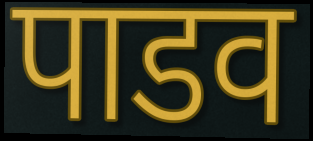
पाडव